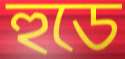
হুডে